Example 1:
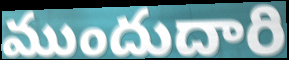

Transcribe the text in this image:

ముందుదారి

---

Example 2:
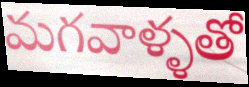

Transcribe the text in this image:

మగవాళ్ళతో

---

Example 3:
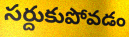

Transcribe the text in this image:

సర్దుకుపోవడం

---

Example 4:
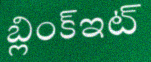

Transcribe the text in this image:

బ్లింక్ఇట్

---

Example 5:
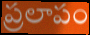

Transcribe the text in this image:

ప్రలాపం